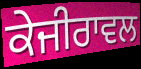
ਕੇਜੀਰਾਵਲ